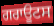
ਗਰਾਊਟਸ